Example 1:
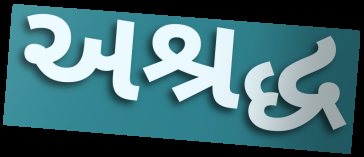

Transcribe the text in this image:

અશ્રદ્ધ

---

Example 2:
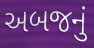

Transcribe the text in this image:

અબજનું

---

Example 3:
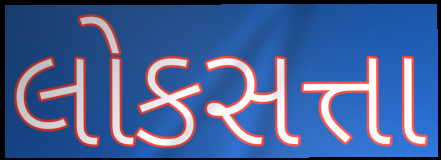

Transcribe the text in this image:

લોકસત્તા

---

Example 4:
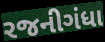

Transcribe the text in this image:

રજનીગંધા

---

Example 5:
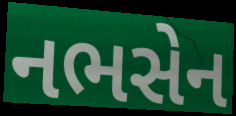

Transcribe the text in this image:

નભસેન